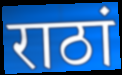
राठां